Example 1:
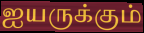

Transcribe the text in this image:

ஐயருக்கும்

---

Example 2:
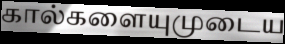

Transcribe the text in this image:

கால்களையுமுடைய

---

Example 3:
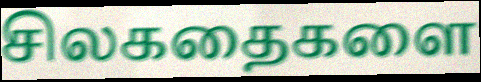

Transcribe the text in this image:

சிலகதைகளை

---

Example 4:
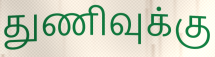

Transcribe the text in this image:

துணிவுக்கு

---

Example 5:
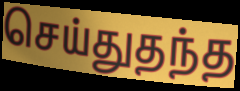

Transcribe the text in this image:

செய்துதந்த